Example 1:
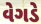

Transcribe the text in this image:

વેગડે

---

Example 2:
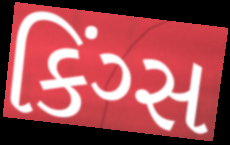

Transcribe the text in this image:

કિંગ્સ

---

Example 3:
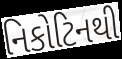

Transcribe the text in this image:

નિકોટિનથી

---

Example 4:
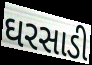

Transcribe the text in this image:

ઘરસાડી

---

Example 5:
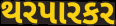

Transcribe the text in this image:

થરપારકર